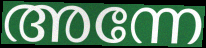
അന്നേ